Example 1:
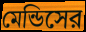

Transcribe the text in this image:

মেন্ডিসের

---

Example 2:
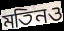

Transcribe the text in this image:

মতিনও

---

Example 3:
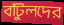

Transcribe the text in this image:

বাঁটুলদের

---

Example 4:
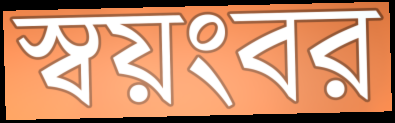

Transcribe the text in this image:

স্বয়ংবর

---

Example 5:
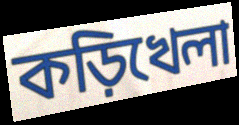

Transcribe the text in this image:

কড়িখেলা